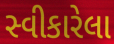
સ્વીકારેલા